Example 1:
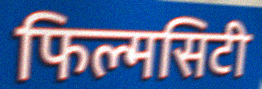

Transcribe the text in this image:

फिल्मसिटी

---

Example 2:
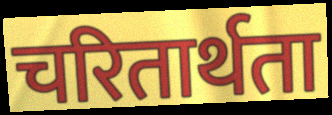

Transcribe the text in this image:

चरितार्थता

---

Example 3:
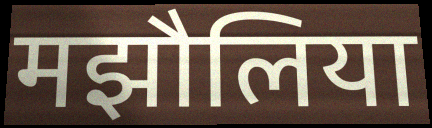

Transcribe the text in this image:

मझौलिया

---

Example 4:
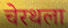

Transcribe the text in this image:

चेरथला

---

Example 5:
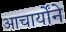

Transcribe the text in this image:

आचार्योंने